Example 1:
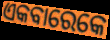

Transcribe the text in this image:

ଏକବାରେକେ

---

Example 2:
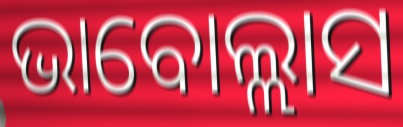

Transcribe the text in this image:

ଭାବୋଲ୍ଲାସ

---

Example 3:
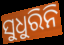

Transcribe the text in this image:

ସୁଧୁରିନି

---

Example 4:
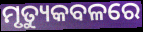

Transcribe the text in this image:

ମୃତ୍ୟୁକବଳରେ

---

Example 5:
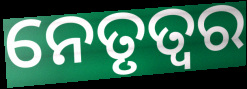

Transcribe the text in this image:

ନେତୃତ୍ବର